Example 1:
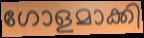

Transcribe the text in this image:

ഗോളമാക്കി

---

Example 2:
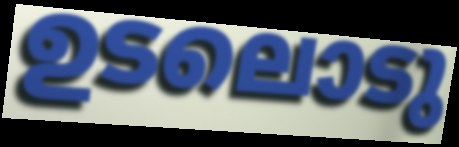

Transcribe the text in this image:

ഉടലൊടു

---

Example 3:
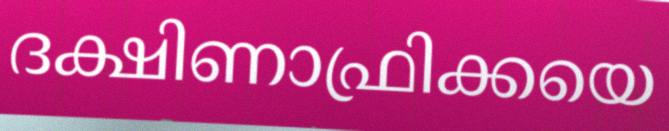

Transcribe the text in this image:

ദക്ഷിണാഫ്രിക്കയെ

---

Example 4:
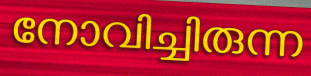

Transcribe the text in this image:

നോവിച്ചിരുന്ന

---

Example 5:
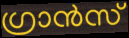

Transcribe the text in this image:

ഗ്രാൻസ്